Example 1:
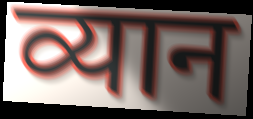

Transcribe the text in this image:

व्यान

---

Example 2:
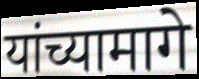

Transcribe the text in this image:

यांच्यामागे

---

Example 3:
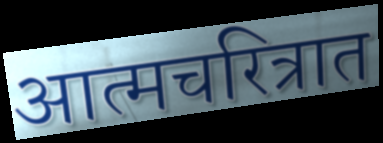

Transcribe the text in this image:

आत्मचरित्रात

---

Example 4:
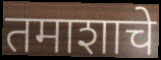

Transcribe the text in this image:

तमाशाचे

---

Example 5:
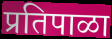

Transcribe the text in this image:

प्रतिपाळा